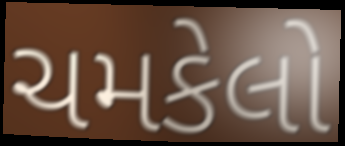
ચમકેલો